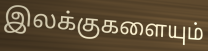
இலக்குகளையும்